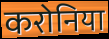
करोनिया